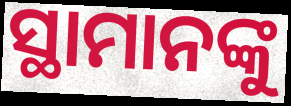
ସ୍ଥାମାନଙ୍କୁ